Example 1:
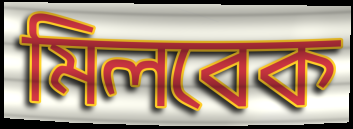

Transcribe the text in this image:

মিলবেক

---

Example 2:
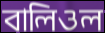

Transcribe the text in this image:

বালিওল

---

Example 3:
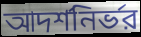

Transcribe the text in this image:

আদর্শনির্ভর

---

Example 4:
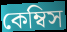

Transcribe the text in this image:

কেম্বিস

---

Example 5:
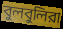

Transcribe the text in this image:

বুলবুলিরা